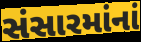
સંસારમાંનાં